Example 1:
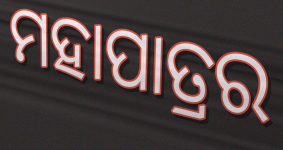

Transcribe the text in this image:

ମହାପାତ୍ରର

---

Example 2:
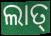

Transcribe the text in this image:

ଲାତ୍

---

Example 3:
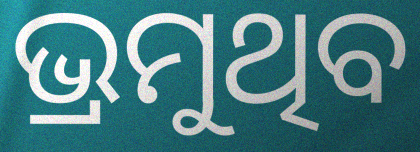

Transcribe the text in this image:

ଭ୍ରମୁଥିବ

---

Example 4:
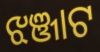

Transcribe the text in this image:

ଝଞ୍ଜାଟ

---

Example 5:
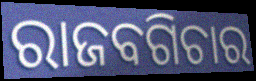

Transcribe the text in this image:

ରାଜବଗିଚାର